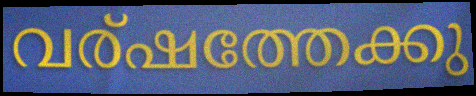
വര്ഷത്തേക്കു